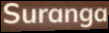
Suranga